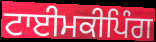
ਟਾਈਮਕੀਪਿੰਗ